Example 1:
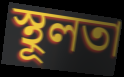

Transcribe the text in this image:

স্থূলতা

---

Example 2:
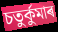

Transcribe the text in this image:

চতুৰ্কুমাৰ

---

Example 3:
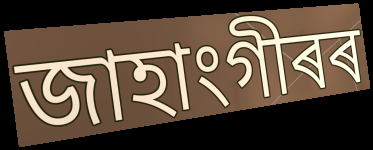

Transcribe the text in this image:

জাহাংগীৰৰ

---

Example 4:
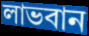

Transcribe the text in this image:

লাভবান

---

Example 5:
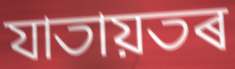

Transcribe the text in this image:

যাতায়তৰ